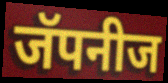
जॅपनीज